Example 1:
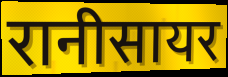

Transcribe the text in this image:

रानीसायर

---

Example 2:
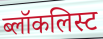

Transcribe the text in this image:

ब्लॉकलिस्ट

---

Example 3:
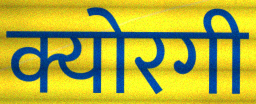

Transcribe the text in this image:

क्योरगी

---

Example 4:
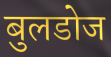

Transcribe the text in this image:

बुलडोज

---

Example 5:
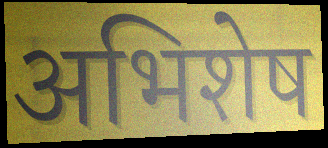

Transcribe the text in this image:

अभिशेष